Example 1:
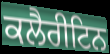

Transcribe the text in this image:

ਕਲੈਰੀਟਿਨ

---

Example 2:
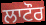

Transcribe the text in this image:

ਲਾਟੌਰ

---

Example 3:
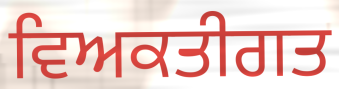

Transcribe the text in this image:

ਵਿਅਕਤੀਗਤ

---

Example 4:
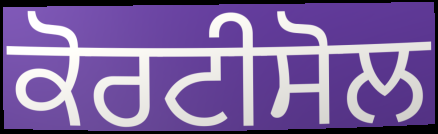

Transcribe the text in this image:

ਕੋਰਟੀਸੋਲ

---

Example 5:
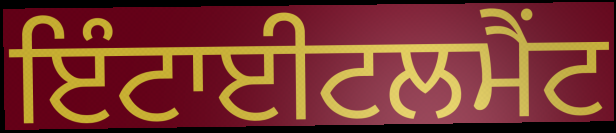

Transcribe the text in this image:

ਇੰਟਾਈਟਲਮੈਂਟ